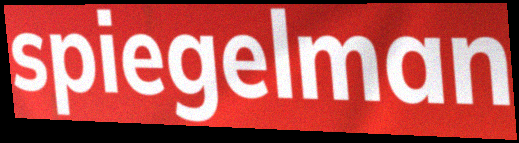
spiegelman